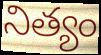
నిత్యం